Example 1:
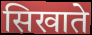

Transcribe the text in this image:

सिखाते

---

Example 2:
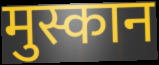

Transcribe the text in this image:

मुस्कान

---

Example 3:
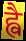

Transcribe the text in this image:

ह्वै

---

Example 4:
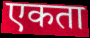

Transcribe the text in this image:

एकता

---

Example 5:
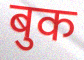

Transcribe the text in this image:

बुक